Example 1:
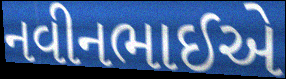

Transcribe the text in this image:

નવીનભાઈએ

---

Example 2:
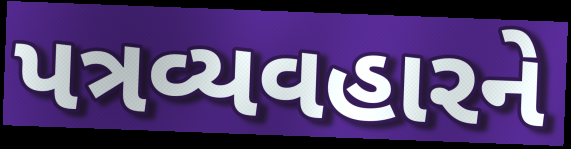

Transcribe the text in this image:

પત્રવ્યવહારને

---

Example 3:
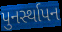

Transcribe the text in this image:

પુનર્સ્થાપન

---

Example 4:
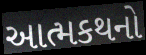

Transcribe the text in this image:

આત્મકથનો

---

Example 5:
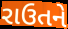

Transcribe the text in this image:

રાઉતને